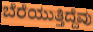
ಬೆರೆಯುತ್ತಿದ್ದೆವು